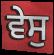
ਵੇਸੁ